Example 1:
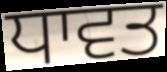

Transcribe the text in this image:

ਧਾਵਤ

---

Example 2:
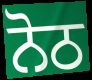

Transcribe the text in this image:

ਨੋਠ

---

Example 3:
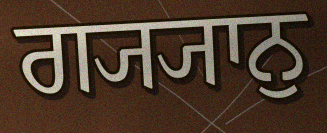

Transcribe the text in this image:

ਗ੍ਯ੍ਯਾਨੁ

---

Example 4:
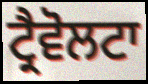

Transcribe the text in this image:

ਟ੍ਰੈਵੋਲਟਾ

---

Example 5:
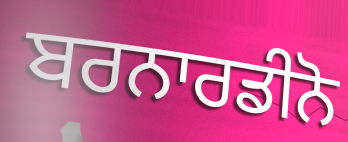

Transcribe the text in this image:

ਬਰਨਾਰਡੀਨੋ